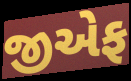
જીએફ